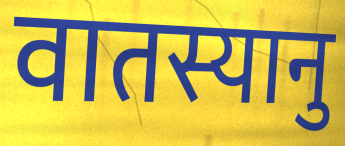
वातस्यानु